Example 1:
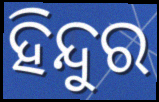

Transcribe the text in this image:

ହିନ୍ଦୁର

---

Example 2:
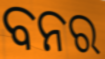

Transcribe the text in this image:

ବନର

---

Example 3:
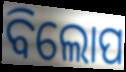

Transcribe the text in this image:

ବିଲୋପ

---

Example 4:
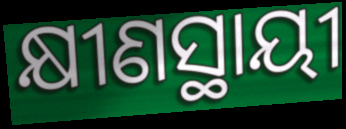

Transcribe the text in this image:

କ୍ଷୀଣସ୍ଥାୟୀ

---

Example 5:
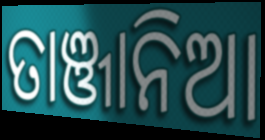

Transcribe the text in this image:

ତାଞ୍ଜାନିଆ